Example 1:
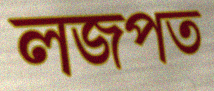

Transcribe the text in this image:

লজপত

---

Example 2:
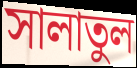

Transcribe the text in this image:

সালাতুল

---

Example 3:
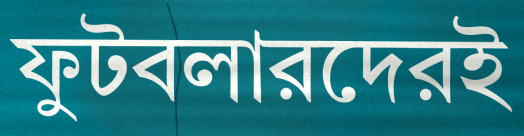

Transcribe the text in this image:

ফুটবলারদেরই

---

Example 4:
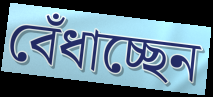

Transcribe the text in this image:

বেঁধাচ্ছেন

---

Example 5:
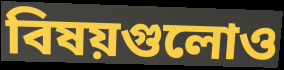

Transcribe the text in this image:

বিষয়গুলোও